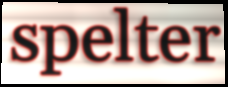
spelter